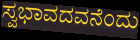
ಸ್ವಭಾವದವನೆಂದು